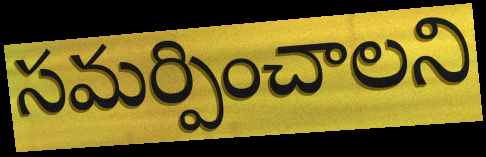
సమర్పించాలని